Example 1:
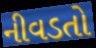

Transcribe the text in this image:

નીવડતો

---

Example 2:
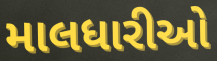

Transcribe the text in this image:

માલધારીઓ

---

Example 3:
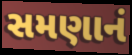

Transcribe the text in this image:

સમણાનં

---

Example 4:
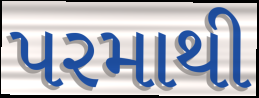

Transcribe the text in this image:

પરમાથી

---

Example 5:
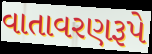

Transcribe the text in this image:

વાતાવરણરૂપે